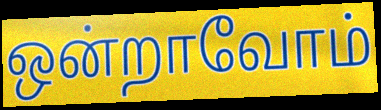
ஒன்றாவோம்